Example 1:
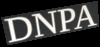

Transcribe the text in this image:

DNPA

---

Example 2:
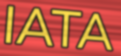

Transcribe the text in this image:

IATA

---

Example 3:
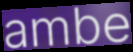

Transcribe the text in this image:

ambe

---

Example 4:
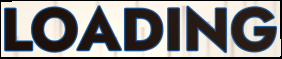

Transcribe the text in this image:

LOADING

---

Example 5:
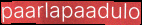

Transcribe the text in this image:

paarlapaadulo